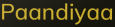
Paandiyaa